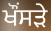
ਖੌਂਸੜੇ